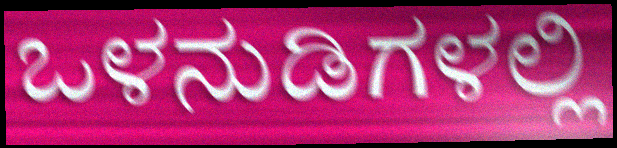
ಒಳನುಡಿಗಳಲ್ಲಿ